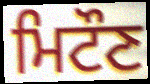
ਮਿਟੌਣ